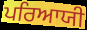
ਪਰਿਆਯੀ